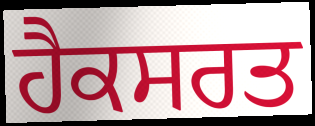
ਹੈਕਸਰਤ